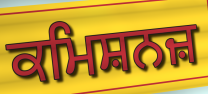
ਕਮਿਸ਼ਨਜ਼